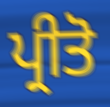
ਪ੍ਰੀਤੋ